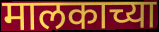
मालकाच्या